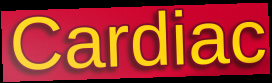
Cardiac